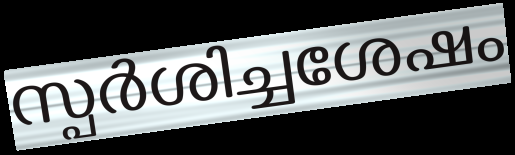
സ്പർശിച്ചശേഷം